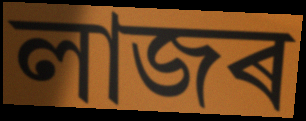
লাজৰ